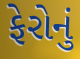
ફેરોનું